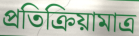
প্রতিক্রিয়ামাত্র